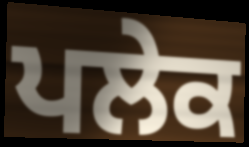
ਪਲੇਕ